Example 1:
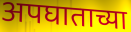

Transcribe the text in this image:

अपघाताच्या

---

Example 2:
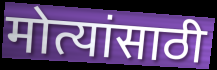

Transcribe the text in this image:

मोत्यांसाठी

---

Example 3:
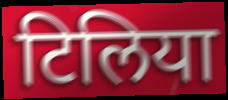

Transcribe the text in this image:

टिलिया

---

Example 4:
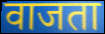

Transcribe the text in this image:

वाजता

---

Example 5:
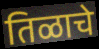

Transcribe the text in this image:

तिळाचे